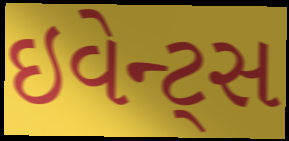
ઇવેન્ટ્સ